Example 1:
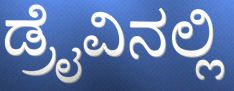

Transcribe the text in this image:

ಡ್ರೈವಿನಲ್ಲಿ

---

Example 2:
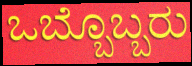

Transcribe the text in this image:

ಒಬ್ಬೊಬ್ಬರು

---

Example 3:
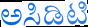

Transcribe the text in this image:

ಅಸಿಡಿಟಿ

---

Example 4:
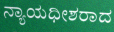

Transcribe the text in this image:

ನ್ಯಾಯಧೀಶರಾದ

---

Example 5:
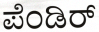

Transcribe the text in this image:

ಪೆಂಡಿರ್